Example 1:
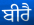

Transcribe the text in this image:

ਬੀਰੈ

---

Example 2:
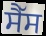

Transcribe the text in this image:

ਸੈੱਸ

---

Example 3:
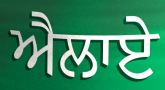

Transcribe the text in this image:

ਐਲਾਏ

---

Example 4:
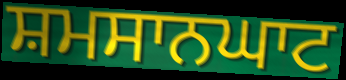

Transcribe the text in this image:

ਸ਼ਮਸਾਨਘਾਟ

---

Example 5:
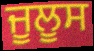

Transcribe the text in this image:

ਜੂਲੂਸ